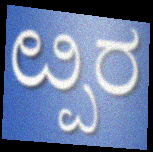
ೞ್ಪರ